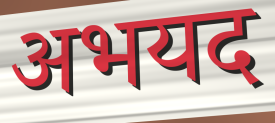
अभयद